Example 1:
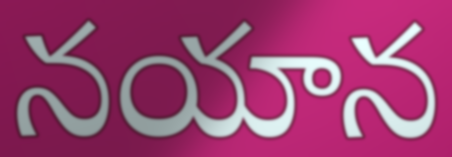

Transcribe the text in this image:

నయాన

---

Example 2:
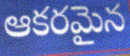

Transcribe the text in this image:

ఆకరమైన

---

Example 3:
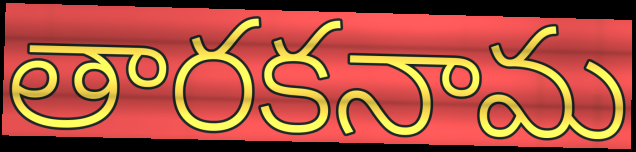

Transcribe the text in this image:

తారకనామ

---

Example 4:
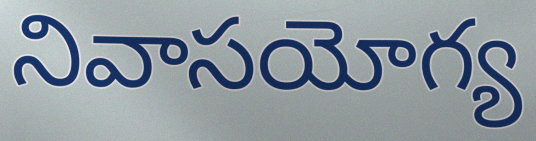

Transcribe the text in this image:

నివాసయోగ్య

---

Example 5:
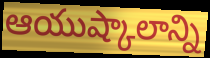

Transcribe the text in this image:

ఆయుష్కాలాన్ని